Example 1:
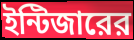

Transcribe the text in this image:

ইন্টিজারের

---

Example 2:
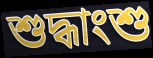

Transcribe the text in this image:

শুদ্ধাংশু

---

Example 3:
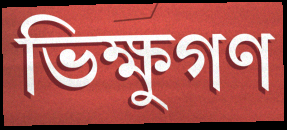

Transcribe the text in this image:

ভিক্ষুগণ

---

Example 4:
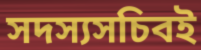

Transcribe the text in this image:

সদস্যসচিবই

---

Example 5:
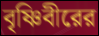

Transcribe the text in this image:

বৃষ্ণিবীরের